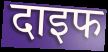
दाइफ